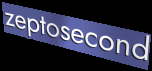
zeptosecond